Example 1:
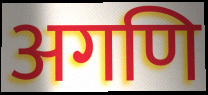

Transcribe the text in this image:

अगणि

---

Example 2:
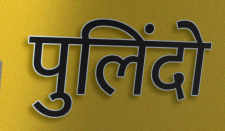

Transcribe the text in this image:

पुलिंदो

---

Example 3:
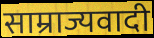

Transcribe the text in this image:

साम्राज्‍यवादी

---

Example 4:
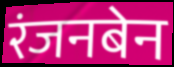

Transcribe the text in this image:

रंजनबेन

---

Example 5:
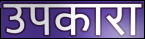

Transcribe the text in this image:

उपकारा